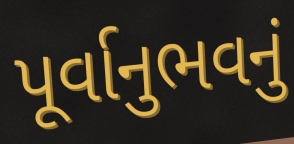
પૂર્વાનુભવનું